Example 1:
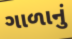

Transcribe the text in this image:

ગાળાનું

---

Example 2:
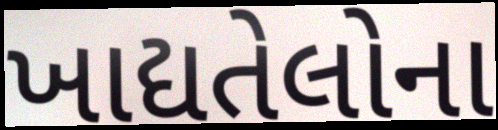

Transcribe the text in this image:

ખાદ્યતેલોના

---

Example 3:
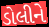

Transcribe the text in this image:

ડોલીને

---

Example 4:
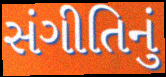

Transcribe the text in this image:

સંગીતિનું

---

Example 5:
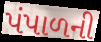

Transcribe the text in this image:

પંપાળની